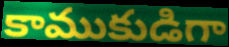
కాముకుడిగా